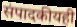
संपादकीयही